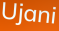
Ujani